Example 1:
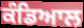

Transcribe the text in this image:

ਕੰਡਿਆਲ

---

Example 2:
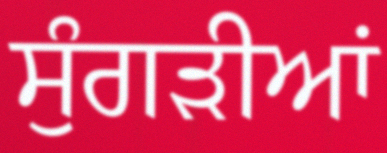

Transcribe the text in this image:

ਸੁੰਗੜੀਆਂ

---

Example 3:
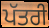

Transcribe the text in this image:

ਪੱਤਰੀ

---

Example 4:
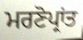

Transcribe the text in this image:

ਮਰਣੋਪ੍ਰਾਂਤ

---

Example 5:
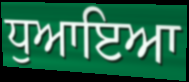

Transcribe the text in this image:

ਧੁਆਇਆ